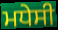
ਮਧੇਸੀ